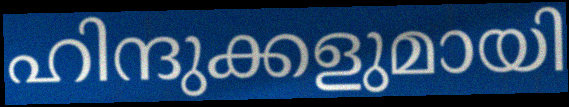
ഹിന്ദുക്കളുമായി